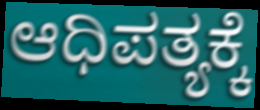
ಆಧಿಪತ್ಯಕ್ಕೆ